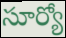
సూర్యో